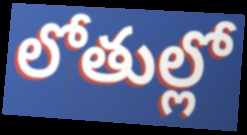
లోతుల్లో